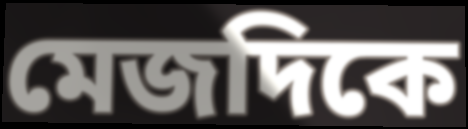
মেজদিকে